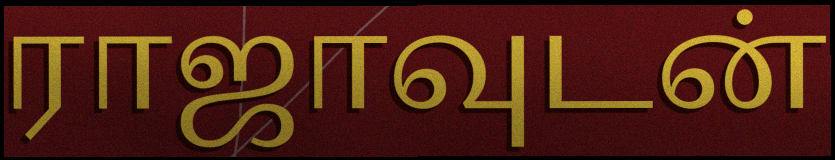
ராஜாவுடன்